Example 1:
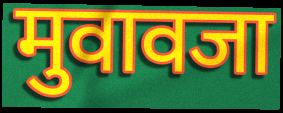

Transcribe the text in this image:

मुवावजा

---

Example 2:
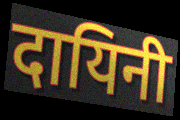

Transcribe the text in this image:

दायिनी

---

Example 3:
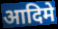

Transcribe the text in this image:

आदिमे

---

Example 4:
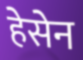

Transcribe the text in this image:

हेसेन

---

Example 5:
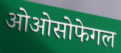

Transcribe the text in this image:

ओओसोफेगल